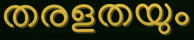
തരളതയും